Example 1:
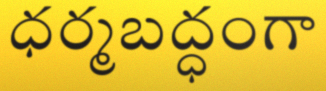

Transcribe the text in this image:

ధర్మబద్ధంగా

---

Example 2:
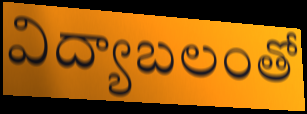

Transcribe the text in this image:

విద్యాబలంతో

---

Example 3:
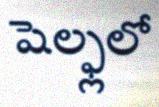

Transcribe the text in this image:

షెల్ఫ్లలో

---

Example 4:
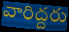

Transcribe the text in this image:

వారిద్దరు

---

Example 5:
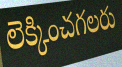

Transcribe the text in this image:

లెక్కించగలరు